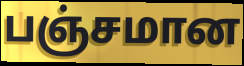
பஞ்சமான